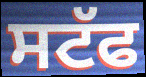
ਸਟੱਫ